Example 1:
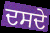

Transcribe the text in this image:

ਦਸਦੇ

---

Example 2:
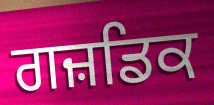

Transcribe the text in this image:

ਗਜ਼ਡਿਕ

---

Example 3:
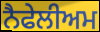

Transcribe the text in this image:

ਨੈਫੇਲੀਅਮ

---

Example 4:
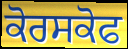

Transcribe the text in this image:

ਕੋਰਸਕੋਫ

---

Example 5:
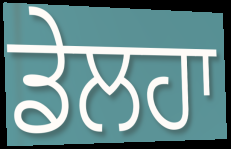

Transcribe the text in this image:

ਡੇਲਹਾ